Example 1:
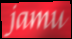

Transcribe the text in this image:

jamu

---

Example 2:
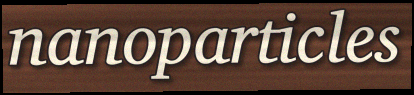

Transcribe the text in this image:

nanoparticles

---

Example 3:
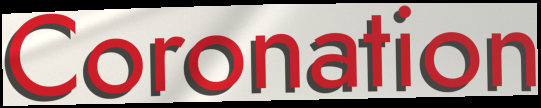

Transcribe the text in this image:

Coronation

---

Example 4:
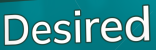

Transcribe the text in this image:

Desired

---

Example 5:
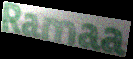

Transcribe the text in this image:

Ramaa